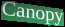
Canopy